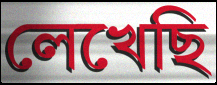
লেখেছি